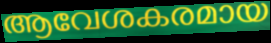
ആവേശകരമായ